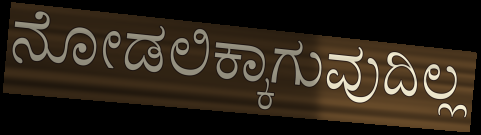
ನೋಡಲಿಕ್ಕಾಗುವುದಿಲ್ಲ